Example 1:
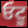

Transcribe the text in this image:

ਓਟੂ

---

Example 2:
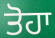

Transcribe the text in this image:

ਤੋਹਾ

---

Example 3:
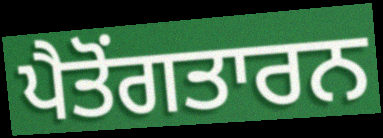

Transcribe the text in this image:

ਪੈਤੋਂਗਤਾਰਨ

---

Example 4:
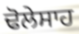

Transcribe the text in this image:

ਢੋਲੇਸਾਹ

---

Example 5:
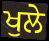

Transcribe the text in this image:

ਖੁਲੇ